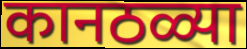
कानठळ्या